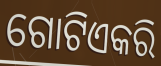
ଗୋଟିଏକରି